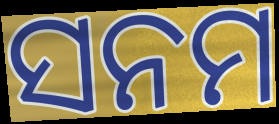
ସନମ